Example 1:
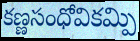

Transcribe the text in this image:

కణ్ణసంధోవికమ్పి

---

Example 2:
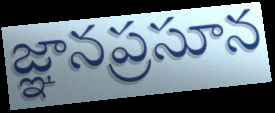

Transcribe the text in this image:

జ్ఞానప్రసూన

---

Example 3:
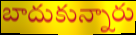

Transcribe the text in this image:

బాదుకున్నారు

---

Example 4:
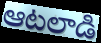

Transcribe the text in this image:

ఆటలాడి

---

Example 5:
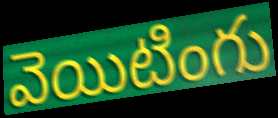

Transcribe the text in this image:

వెయిటింగు